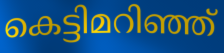
കെട്ടിമറിഞ്ഞ്